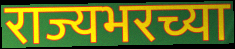
राज्यभरच्या